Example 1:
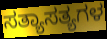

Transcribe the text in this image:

ಸತ್ಯಾಸತ್ಯಗಳ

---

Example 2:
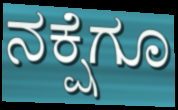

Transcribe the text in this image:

ನಕ್ಷೆಗೂ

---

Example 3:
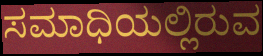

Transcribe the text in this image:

ಸಮಾಧಿಯಲ್ಲಿರುವ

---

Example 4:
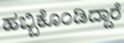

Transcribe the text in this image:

ಹಬ್ಬಿಕೊಂಡಿದ್ದಾರೆ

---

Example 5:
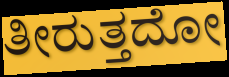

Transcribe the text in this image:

ತೀರುತ್ತದೋ